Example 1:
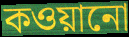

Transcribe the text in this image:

কওয়ানো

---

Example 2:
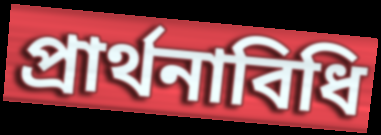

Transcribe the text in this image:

প্রার্থনাবিধি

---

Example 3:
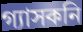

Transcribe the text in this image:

গ্যাসকনি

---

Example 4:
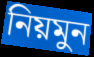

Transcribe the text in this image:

নিয়মুন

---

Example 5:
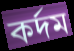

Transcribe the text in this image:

কর্দম